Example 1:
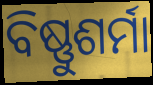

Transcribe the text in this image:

ବିଷ୍ଣୁଶର୍ମା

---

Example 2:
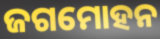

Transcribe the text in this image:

ଜଗମୋହନ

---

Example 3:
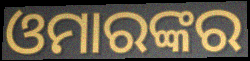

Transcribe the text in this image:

ଓମାରଙ୍କର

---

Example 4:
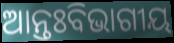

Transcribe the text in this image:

ଆନ୍ତଃବିଭାଗୀୟ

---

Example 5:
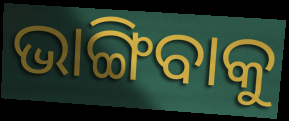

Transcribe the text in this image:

ଭାଙ୍ଗିବାକୁ